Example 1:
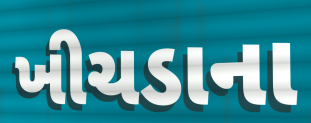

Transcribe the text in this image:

ખીચડાના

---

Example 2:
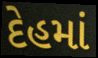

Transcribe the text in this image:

દેહમાં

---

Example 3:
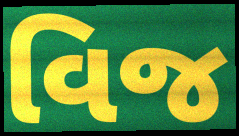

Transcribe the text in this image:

વિજ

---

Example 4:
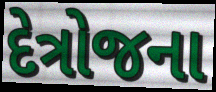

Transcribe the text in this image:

દેત્રોજના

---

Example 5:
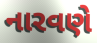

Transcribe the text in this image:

નારવણે